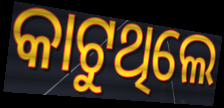
କାଟୁଥିଲେ